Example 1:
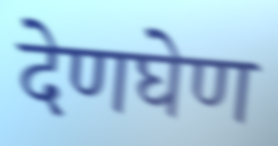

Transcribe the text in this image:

देणघेण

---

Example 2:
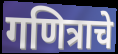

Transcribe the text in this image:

गणित्राचे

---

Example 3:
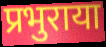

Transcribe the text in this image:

प्रभुराया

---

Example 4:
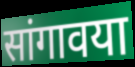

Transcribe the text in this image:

सांगावया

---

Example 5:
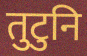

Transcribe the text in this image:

तुटुनि